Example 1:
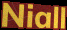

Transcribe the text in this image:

Niall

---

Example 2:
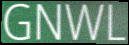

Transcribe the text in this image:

GNWL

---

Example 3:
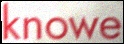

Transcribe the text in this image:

knowe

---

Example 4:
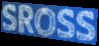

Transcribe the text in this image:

SROSS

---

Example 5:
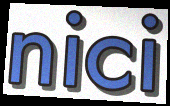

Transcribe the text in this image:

nici